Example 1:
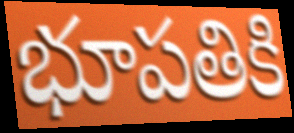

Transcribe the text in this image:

భూపతికి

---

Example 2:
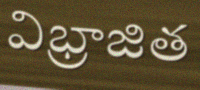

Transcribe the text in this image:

విభ్రాజిత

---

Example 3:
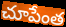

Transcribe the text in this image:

చూపేంత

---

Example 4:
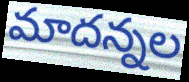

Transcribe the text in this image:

మాదన్నల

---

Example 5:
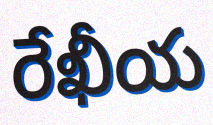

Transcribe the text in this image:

రేఖీయ